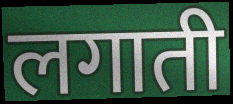
लगाती